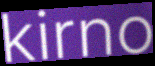
kirno